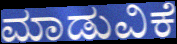
ಮಾಡುವಿಕೆ